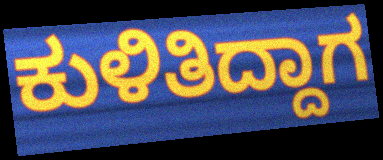
ಕುಳಿತಿದ್ದಾಗ